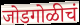
जोडगोळीचं